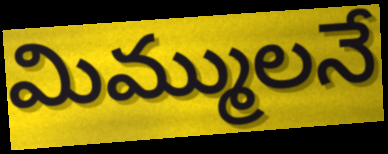
మిమ్ములనే